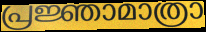
പ്രജ്ഞാമാത്രാ